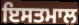
ਇਸਤਮਾਲ